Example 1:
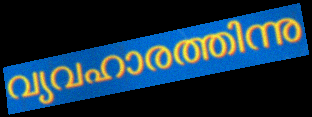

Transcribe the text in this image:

വ്യവഹാരത്തിന്നു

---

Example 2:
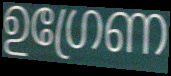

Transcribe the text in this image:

ഉഗ്രേണ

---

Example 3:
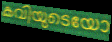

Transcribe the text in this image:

കവിയുടെയോ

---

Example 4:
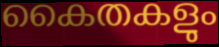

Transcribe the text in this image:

കൈതകളും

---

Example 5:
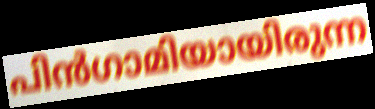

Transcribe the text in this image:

പിൻഗാമിയായിരുന്ന